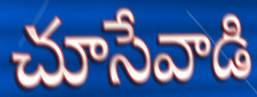
చూసేవాడి